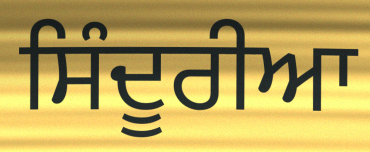
ਸਿੰਦੂਰੀਆ